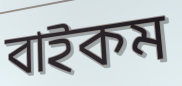
বাইকম